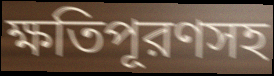
ক্ষতিপূরণসহ